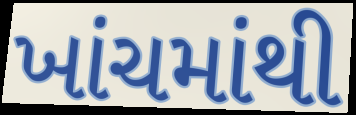
ખાંચમાંથી